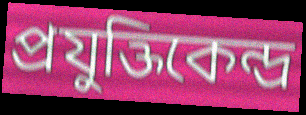
প্রযুক্তিকেন্দ্র